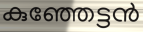
കുഞ്ഞേട്ടൻ